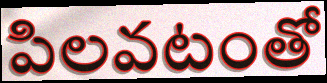
పిలవటంతో